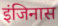
इंजिनास